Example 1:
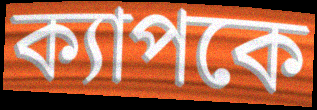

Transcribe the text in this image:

ক্যাপকে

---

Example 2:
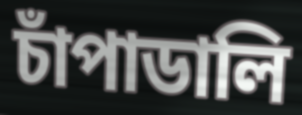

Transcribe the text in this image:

চাঁপাডালি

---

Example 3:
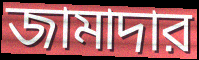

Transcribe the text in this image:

জামাদার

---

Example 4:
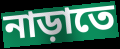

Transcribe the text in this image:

নাড়াতে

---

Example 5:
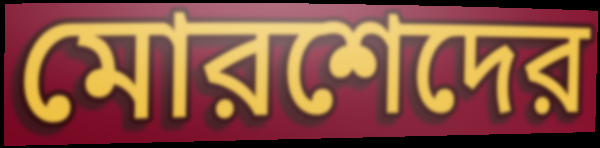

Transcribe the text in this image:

মোরশেদের